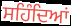
ਸਹਿੰਦਿਆਂ